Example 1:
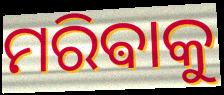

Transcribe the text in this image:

ମରିଵାକୁ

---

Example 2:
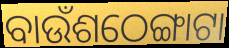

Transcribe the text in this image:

ବାଉଁଶଠେଙ୍ଗାଟା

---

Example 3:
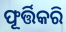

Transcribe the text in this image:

ଫୂର୍ତ୍ତିକରି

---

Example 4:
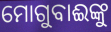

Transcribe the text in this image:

ମୋଗୁବାଈଙ୍କୁ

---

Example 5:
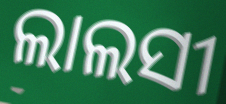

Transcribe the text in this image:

ଲାଲସୀ